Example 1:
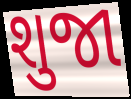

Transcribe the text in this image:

શુજા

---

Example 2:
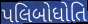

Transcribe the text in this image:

પલિબોધોતિ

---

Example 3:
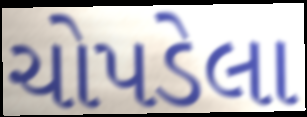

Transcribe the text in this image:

ચોપડેલા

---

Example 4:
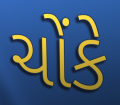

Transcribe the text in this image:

ચોંકે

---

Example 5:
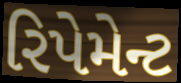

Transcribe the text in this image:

રિપેમેન્ટ